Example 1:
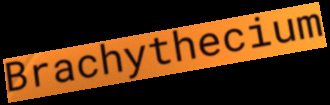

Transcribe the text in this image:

Brachythecium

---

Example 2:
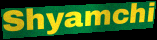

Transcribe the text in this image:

Shyamchi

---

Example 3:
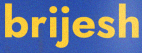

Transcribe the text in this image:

brijesh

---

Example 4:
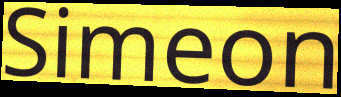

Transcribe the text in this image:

Simeon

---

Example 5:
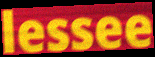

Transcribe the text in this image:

lessee